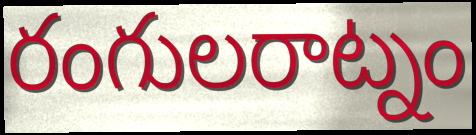
రంగులరాట్నం